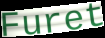
Furet